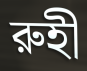
রুহী